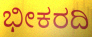
ಭೀಕರದಿ